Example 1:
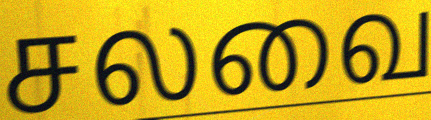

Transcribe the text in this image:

சலவை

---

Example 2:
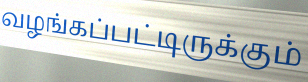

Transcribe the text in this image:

வழங்கப்பட்டிருக்கும்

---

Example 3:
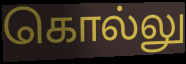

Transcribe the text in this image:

கொல்லு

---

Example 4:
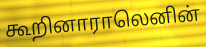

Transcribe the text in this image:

கூறினாராலெனின்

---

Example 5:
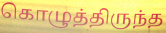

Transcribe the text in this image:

கொழுத்திருந்த